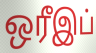
ஒரீஇப்